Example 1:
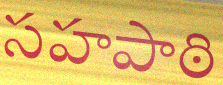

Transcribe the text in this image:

సహపాఠి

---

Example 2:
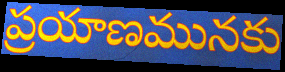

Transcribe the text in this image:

ప్రయాణమునకు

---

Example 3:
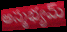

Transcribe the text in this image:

అస్మభ్యమ్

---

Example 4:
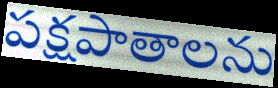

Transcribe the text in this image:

పక్షపాతాలను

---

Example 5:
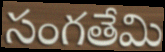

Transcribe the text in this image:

సంగతేమి